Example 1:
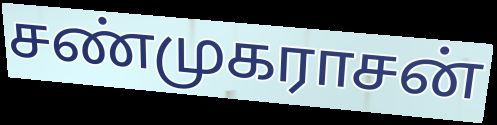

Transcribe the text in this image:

சண்முகராசன்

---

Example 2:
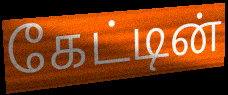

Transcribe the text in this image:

கேட்டின்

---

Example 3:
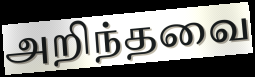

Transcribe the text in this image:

அறிந்தவை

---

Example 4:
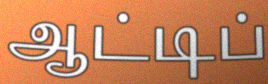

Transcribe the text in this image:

ஆட்டிப்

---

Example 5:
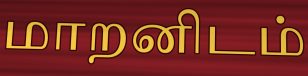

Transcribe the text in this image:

மாறனிடம்